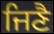
ਜਿਣੈ